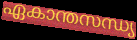
ഏകാന്തസന്ധ്യ